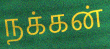
நக்கன்